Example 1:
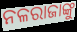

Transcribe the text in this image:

ନଳରାଜାଙ୍କୁ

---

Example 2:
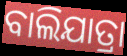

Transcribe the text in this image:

ବାଲିଯାତ୍ରା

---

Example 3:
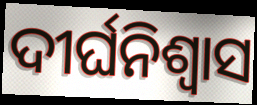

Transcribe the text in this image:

ଦୀର୍ଘନିଶ୍ୱାସ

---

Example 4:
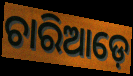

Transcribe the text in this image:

ଚାରିଆଡ଼େ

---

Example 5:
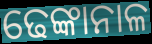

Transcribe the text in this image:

ଢେଙ୍କାନାଳ